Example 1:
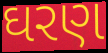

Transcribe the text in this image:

ઘરણ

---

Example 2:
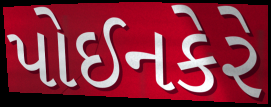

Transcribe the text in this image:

પોઈનકેરે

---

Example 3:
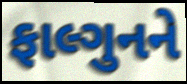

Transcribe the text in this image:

ફાલ્ગુનને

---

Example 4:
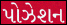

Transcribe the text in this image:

પોઝેશન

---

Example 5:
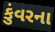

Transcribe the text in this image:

કુંવરના